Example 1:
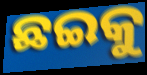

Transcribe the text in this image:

ଛଇକୁ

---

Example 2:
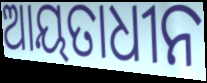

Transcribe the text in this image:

ଆୟତାଧୀନ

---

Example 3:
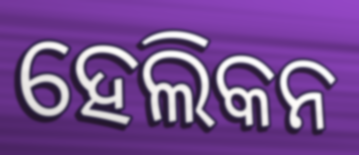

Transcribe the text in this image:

ହେଲିକନ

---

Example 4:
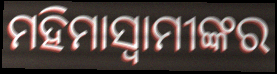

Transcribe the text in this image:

ମହିମାସ୍ୱାମୀଙ୍କର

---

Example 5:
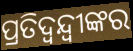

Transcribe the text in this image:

ପ୍ରତିଦ୍ୱନ୍ଦ୍ୱୀଙ୍କର